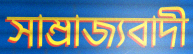
সাম্রাজ্যবাদী